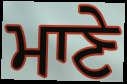
ਮਾਣੇ